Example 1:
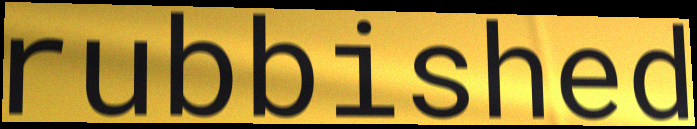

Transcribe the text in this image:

rubbished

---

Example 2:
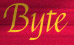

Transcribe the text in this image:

Byte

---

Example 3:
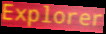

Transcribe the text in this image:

Explorer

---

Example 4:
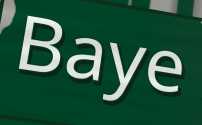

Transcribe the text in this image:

Baye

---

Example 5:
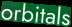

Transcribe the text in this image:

orbitals